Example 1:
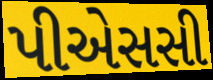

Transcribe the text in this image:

પીએસસી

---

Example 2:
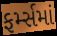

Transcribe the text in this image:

ફર્મ્સમાં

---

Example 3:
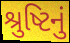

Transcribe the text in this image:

શ્રુષ્ટિનું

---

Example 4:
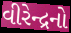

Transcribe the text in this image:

વીરેન્દ્રનો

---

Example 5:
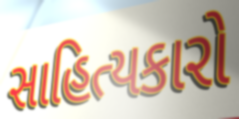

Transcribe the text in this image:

સાહિત્યકારો